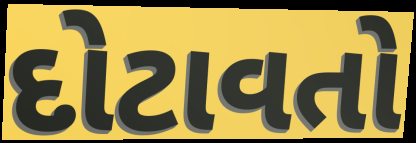
દોટાવતો